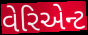
વેરિએન્ટ